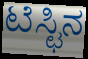
ಟೆಸ್ಟಿನ